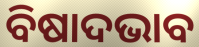
ବିଷାଦଭାବ